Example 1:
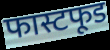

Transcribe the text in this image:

फास्‍टफूड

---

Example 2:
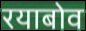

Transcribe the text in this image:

रयाबोव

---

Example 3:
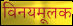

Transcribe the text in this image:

विनयमूलक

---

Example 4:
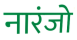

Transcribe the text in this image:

नारंजो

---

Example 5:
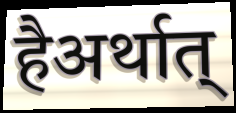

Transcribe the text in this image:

हैअर्थात्